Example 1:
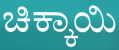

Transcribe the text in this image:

ಚಿಕ್ಕಾಯಿ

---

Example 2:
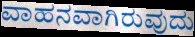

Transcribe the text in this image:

ವಾಹನವಾಗಿರುವುದು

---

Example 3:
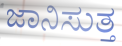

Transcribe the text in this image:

ಜಾನಿಸುತ್ತ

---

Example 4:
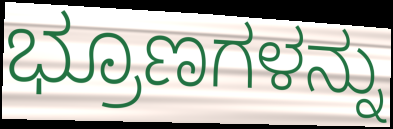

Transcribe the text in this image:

ಭ್ರೂಣಗಳನ್ನು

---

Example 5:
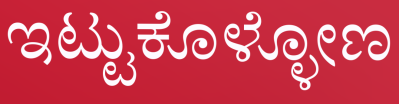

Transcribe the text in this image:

ಇಟ್ಟುಕೊಳ್ಳೋಣ